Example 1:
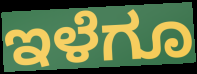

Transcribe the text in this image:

ಇಳೆಗೂ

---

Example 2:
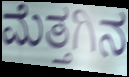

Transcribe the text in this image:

ಮೆತ್ತಗಿನ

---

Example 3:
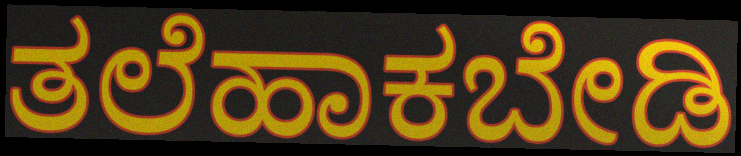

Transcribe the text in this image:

ತಲೆಹಾಕಬೇಡಿ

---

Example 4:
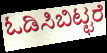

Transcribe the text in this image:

ಓಡಿಸಿಬಿಟ್ಟರೆ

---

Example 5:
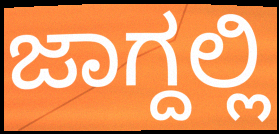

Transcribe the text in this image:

ಜಾಗ್ದಲ್ಲಿ